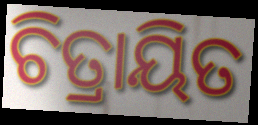
ଚିତ୍ରାୟିତ